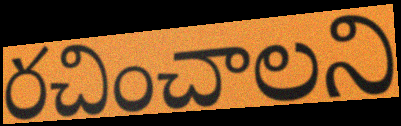
రచించాలని